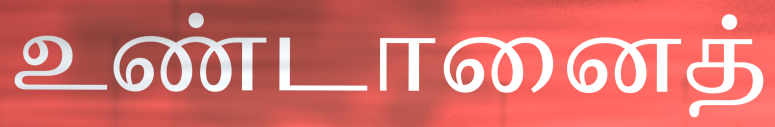
உண்டானைத்